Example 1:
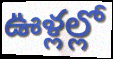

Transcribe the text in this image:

ఊళ్లల్లో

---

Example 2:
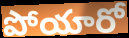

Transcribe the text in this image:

పోయారో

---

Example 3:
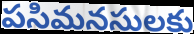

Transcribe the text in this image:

పసిమనసులకు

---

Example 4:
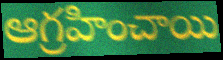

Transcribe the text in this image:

ఆగ్రహించాయి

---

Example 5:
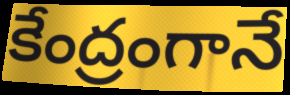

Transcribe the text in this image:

కేంద్రంగానే